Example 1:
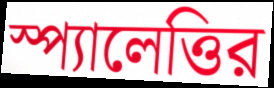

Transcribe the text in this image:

স্প্যালেত্তির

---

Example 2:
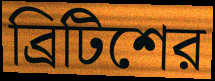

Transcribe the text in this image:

ব্রিটিশের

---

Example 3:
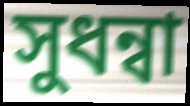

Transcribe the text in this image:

সুধন্বা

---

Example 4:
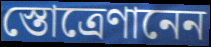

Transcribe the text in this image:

স্তোত্রেণানেন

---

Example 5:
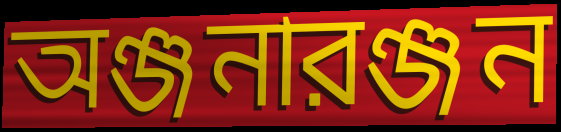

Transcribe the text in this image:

অঞ্জনারঞ্জন